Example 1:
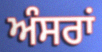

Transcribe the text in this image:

ਅੰਸਰਾਂ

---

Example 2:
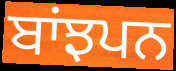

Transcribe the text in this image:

ਬਾਂਝਪਨ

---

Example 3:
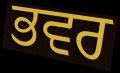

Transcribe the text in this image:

ਭਵਰ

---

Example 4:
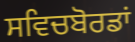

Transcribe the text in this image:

ਸਵਿਚਬੋਰਡਾਂ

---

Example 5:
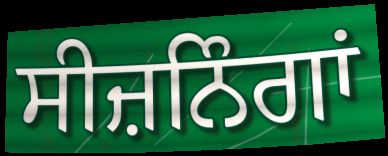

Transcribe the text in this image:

ਸੀਜ਼ਨਿੰਗਾਂ